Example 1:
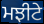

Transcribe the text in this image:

ਮਝੀਟੇ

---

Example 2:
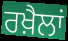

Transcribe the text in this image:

ਰਖ਼ੈਲਾਂ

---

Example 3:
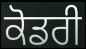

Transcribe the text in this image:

ਕੋਡਰੀ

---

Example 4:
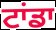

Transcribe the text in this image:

ਟਾਂਡਾ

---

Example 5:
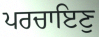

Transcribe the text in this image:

ਪਰਚਾਇਣੁ